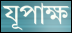
যূপাক্ষ